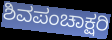
ಶಿವಪಂಚಾಕ್ಷರಿ